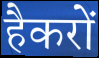
हैकरों